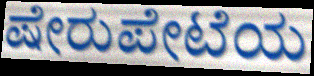
ಷೇರುಪೇಟೆಯ